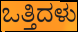
ಒತ್ತಿದಳು